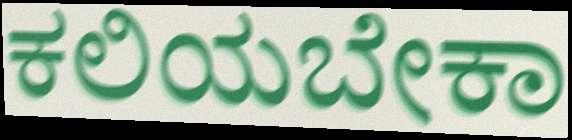
ಕಲಿಯಬೇಕಾ